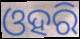
ଓହରି